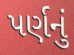
પર્ણનું